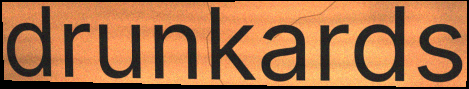
drunkards